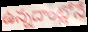
ఉన్నదాంట్లోనే